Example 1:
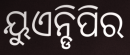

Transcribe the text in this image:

ୟୁଏନ୍ଡିପିର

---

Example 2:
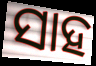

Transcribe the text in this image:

ସାହ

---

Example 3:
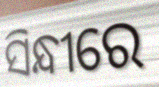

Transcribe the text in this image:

ସିନ୍ଧୀରେ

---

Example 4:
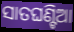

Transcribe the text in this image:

ସାତଘଣ୍ଟିଆ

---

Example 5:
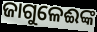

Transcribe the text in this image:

ଜାଗୁଳେଈଙ୍କ